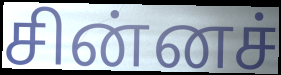
சின்னச்